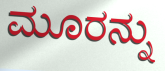
ಮೂರನ್ನು